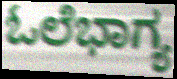
ಓಲೆಭಾಗ್ಯ